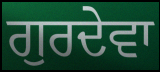
ਗੁਰਦੇਵਾ